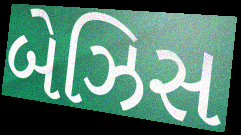
બેઝિસ